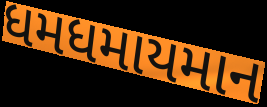
ધમધમાયમાન